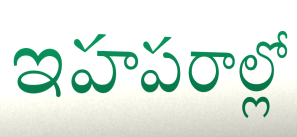
ఇహపరాల్లో